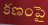
కణంపై